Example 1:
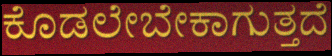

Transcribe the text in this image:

ಕೊಡಲೇಬೇಕಾಗುತ್ತದೆ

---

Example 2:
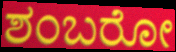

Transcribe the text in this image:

ಶಂಬರೋ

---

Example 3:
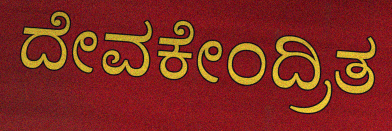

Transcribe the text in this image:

ದೇವಕೇಂದ್ರಿತ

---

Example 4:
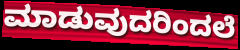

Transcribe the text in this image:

ಮಾಡುವುದರಿಂದಲೆ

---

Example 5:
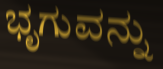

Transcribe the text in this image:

ಭೃಗುವನ್ನು